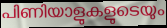
പിണിയാളുകളുടെയും